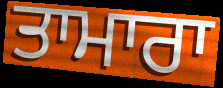
ਤਾਮਾਰਾ